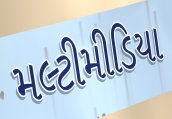
મલ્ટીમીડિયા